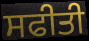
ਸਫੀਤੀ